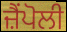
ਜ਼ੈਂਪੋਲੀ